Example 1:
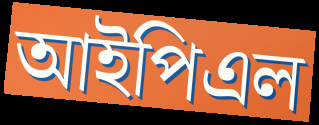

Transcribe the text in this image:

আইপিএল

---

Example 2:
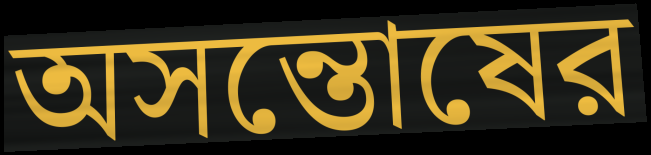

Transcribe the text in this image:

অসন্তোষের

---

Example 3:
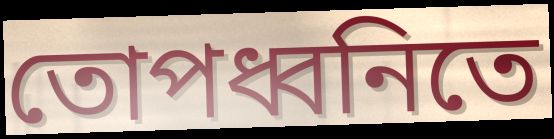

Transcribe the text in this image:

তোপধ্বনিতে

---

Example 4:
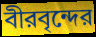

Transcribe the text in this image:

বীরবৃন্দের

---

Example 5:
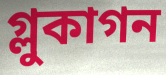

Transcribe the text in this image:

গ্লুকাগন